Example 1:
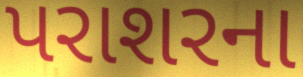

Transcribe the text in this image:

પરાશરના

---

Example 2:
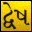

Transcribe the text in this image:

દ્વેષ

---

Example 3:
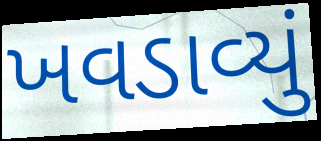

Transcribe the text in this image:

ખવડાવ્યું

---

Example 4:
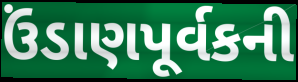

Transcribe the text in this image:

ઉંડાણપૂર્વકની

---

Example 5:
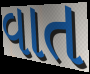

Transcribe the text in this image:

વાત